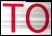
TO